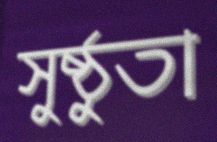
সুষ্ঠুতা